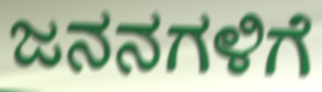
ಜನನಗಳಿಗೆ